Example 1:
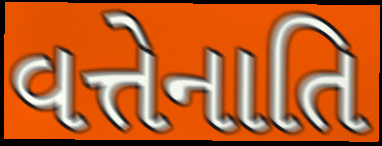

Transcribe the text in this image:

વત્તેનાતિ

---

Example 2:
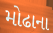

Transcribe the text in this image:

મોઢાના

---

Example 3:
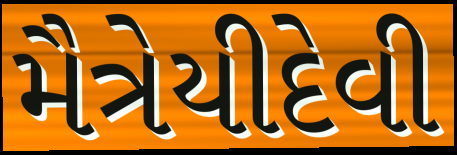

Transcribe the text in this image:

મૈત્રેયીદેવી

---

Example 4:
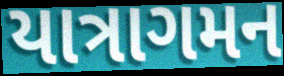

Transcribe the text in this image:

યાત્રાગમન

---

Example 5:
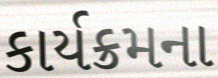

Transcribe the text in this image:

કાર્યક્રમના